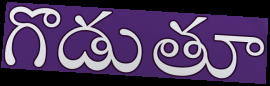
గొడుతూ